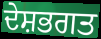
ਦੇਸ਼ਭਗਤ